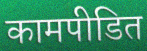
कामपीडित